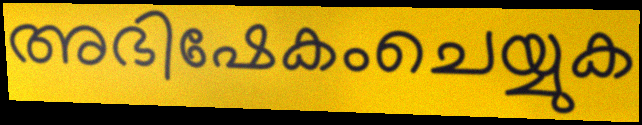
അഭിഷേകംചെയ്യുക